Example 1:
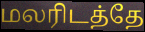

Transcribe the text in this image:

மலரிடத்தே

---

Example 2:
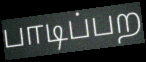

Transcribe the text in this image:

பாடிப்பற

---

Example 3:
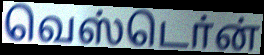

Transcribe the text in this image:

வெஸ்டெர்ன்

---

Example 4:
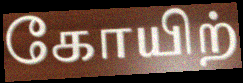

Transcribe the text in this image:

கோயிற்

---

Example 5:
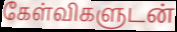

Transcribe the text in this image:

கேள்விகளுடன்